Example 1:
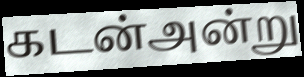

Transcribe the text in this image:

கடன்அன்று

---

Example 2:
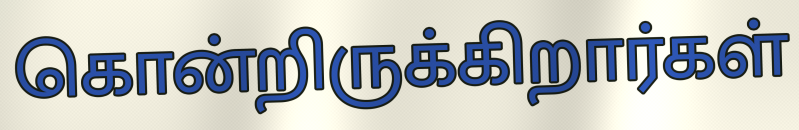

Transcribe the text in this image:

கொன்றிருக்கிறார்கள்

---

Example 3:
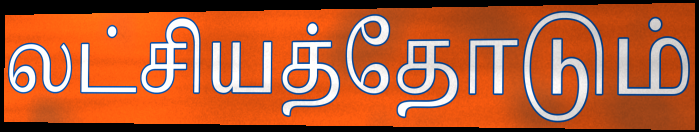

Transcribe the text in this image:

லட்சியத்தோடும்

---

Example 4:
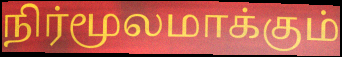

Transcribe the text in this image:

நிர்மூலமாக்கும்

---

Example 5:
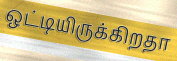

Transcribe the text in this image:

ஒட்டியிருக்கிறதா